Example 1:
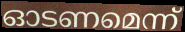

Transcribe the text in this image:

ഓടണമെന്ന്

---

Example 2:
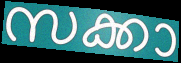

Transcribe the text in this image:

സക്കാ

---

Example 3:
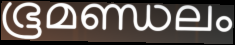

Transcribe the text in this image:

ഭൂമണ്ഡലം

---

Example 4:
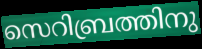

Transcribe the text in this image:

സെറിബ്രത്തിനു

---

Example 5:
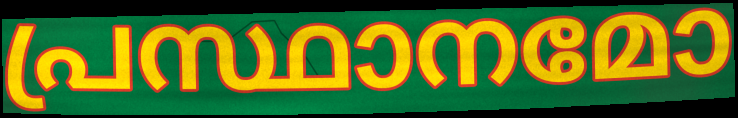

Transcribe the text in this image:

പ്രസ്ഥാനമോ